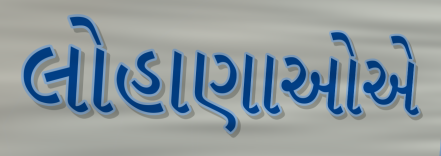
લોહાણાઓએ